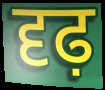
दृढ़